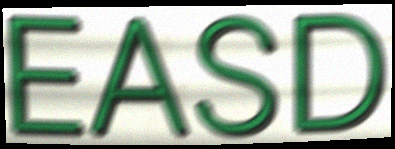
EASD